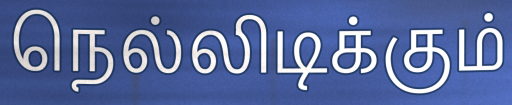
நெல்லிடிக்கும்